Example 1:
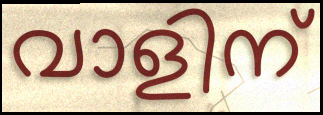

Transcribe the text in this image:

വാളിന്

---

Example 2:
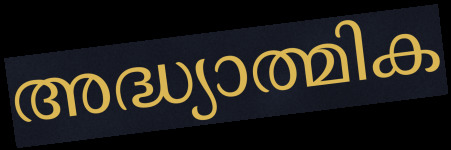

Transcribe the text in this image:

അദ്ധ്യാത്മിക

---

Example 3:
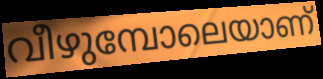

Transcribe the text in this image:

വീഴുമ്പോലെയാണ്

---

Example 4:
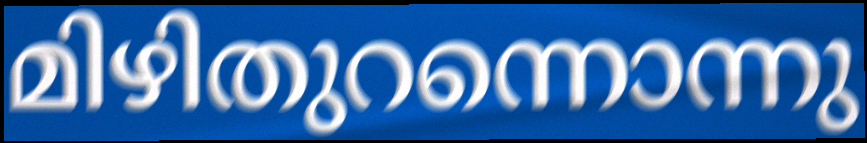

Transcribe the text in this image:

മിഴിതുറന്നൊന്നു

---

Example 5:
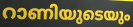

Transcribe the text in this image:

റാണിയുടെയും